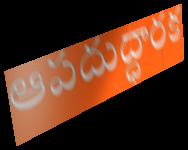
ఆపదుద్ధారక